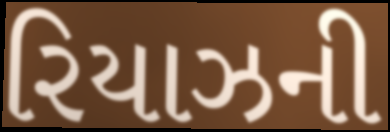
રિયાઝની